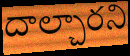
దాల్చారని